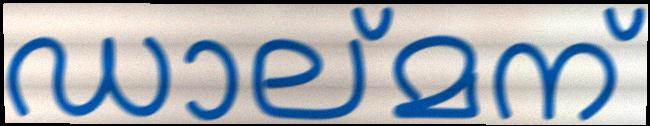
ഡാല്മന്